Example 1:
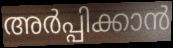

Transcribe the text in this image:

അർപ്പിക്കാൻ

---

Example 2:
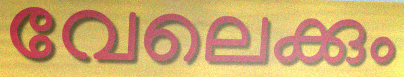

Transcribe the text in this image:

വേലെക്കും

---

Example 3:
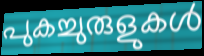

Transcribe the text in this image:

പുകച്ചുരുളുകൾ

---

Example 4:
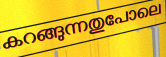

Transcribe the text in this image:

കറങ്ങുന്നതുപോലെ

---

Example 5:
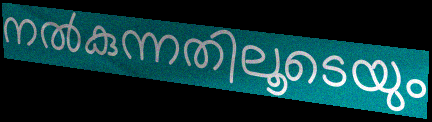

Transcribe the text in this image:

നൽകുന്നതിലൂടെയും